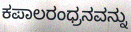
ಕಪಾಲರಂಧ್ರನವನ್ನು